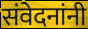
संवेदनांनी